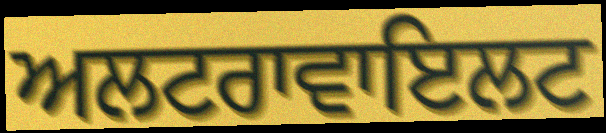
ਅਲਟਰਾਵਾਇਲਟ